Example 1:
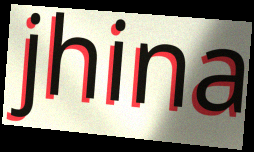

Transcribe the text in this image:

jhina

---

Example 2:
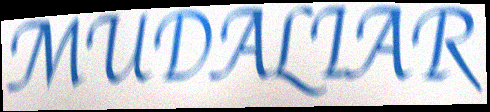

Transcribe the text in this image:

MUDALIAR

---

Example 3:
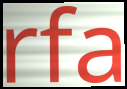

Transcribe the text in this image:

rfa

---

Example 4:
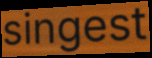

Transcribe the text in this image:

singest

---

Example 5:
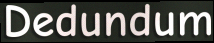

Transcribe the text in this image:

Dedundum